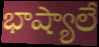
భాష్యాలే